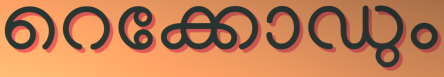
റെക്കോഡും